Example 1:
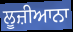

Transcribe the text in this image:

ਲੂਜ਼ੀਆਨਾ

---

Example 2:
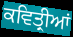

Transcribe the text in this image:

ਕਵਿਤ੍ਰੀਆਂ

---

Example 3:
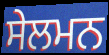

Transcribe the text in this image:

ਸੇਲਮਨ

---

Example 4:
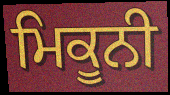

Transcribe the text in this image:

ਮਿਕੂਨੀ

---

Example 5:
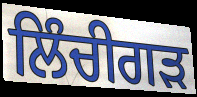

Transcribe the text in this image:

ਲਿੰਚੀਗੜ